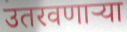
उतरवणाऱ्या